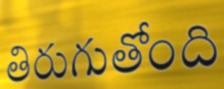
తిరుగుతోంది